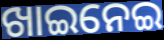
ଖାଇନେଇ